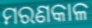
ମରଣକାଳ